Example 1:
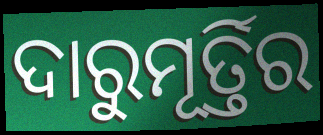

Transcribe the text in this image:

ଦାରୁମୂର୍ତ୍ତିର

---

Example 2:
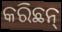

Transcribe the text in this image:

କରିଛନ୍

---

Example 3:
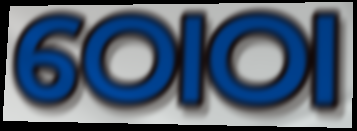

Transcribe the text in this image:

ଠୋଠା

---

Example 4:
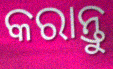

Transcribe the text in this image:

କରାନ୍ତୁ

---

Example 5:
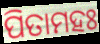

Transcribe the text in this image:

ପିତାମହଃ